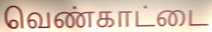
வெண்காட்டை